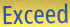
Exceed